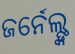
ଜର୍ନେଲ୍ଙ୍କ